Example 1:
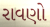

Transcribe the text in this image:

રાવણો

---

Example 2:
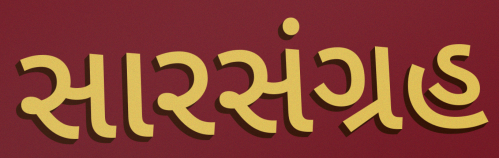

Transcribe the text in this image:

સારસંગ્રહ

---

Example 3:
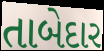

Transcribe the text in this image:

તાબેદાર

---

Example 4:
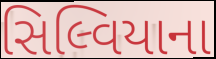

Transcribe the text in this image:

સિલ્વિયાના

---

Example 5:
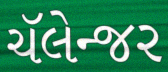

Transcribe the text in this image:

ચૅલેન્જર